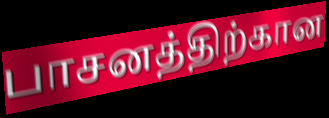
பாசனத்திற்கான